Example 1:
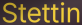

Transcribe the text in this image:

Stettin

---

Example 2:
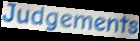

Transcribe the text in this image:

Judgements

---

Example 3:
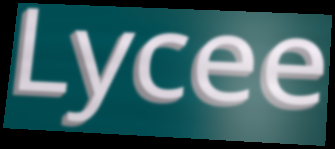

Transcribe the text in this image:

Lycee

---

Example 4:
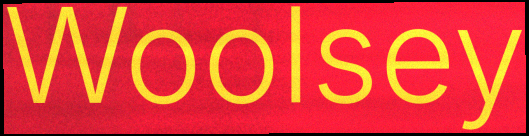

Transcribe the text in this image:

Woolsey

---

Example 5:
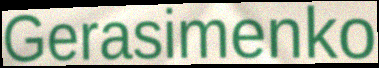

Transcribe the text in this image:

Gerasimenko